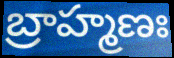
బ్రాహ్మణః